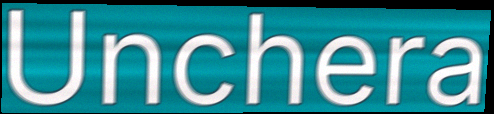
Unchera